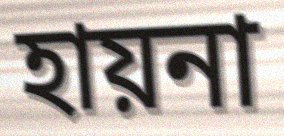
হায়না